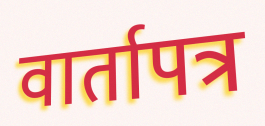
वार्तापत्र